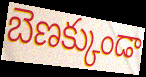
బెణక్కుండా